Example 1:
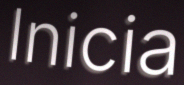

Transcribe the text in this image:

Inicia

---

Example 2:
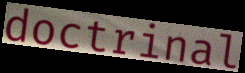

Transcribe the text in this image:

doctrinal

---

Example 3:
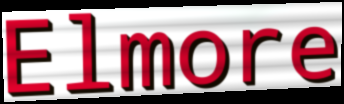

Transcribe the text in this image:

Elmore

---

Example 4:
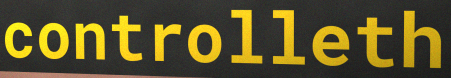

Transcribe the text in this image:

controlleth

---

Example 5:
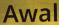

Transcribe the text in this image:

Awal